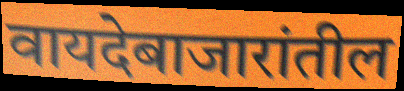
वायदेबाजारांतील